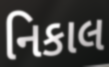
નિકાલ